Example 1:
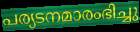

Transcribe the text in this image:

പര്യടനമാരംഭിച്ചു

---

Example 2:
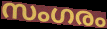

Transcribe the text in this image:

സംഗരം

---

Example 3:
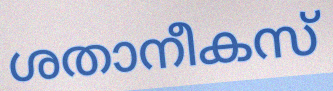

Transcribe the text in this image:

ശതാനീകസ്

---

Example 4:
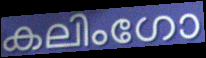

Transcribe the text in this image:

കലിംഗോ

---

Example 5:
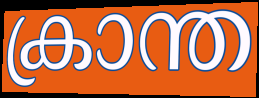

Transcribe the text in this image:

ക്രാന്ത